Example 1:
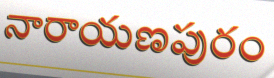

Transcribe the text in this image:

నారాయణపురం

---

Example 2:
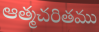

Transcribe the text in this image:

ఆత్మచరితము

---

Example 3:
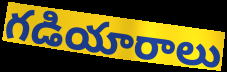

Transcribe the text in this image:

గడియారాలు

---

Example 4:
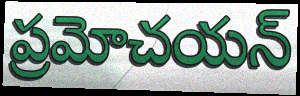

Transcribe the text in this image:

ప్రమోచయన్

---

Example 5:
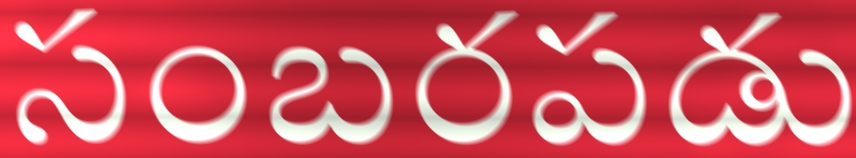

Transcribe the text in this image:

సంబరపడు